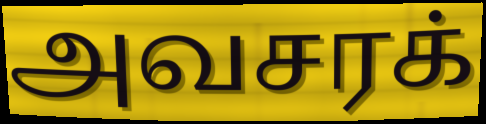
அவசரக்